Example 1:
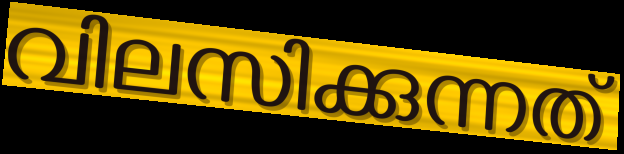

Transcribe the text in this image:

വിലസിക്കുന്നത്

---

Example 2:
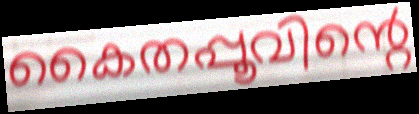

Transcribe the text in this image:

കൈതപ്പൂവിന്റെ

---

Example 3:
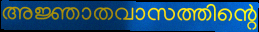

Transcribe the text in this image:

അജ്ഞാതവാസത്തിന്റെ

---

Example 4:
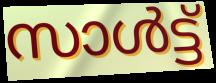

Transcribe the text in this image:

സാൾട്ട്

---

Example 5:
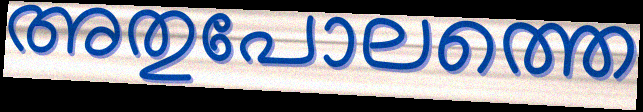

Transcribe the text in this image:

അതുപോലത്തെ